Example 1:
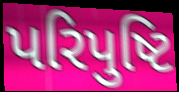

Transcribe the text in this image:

પરિપુષ્ટિ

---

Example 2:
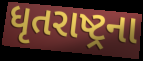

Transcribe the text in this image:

ધૃતરાષ્ટ્રના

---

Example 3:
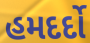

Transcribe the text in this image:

હમદર્દો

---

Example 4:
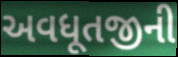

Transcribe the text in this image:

અવધૂતજીની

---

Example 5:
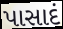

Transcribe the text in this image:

પાસાદં